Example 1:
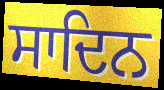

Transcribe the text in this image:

ਸਾਦਿਨ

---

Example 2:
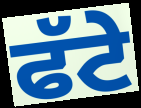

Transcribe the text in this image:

ਫੱਟੇ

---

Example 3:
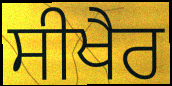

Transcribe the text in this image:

ਸੀਖੈਰ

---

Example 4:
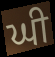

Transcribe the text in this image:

ਘੀ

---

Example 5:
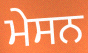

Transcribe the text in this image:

ਮੇਸਨ